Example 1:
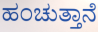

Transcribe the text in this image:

ಹಂಚುತ್ತಾನೆ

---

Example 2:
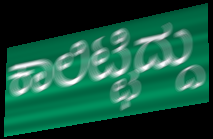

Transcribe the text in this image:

ಕಾಲಿಟ್ಟಿದ್ದು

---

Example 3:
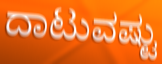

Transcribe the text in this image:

ದಾಟುವಷ್ಟು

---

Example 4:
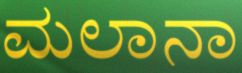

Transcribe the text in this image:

ಮಲಾನಾ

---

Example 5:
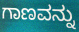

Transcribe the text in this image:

ಗಾಣವನ್ನು